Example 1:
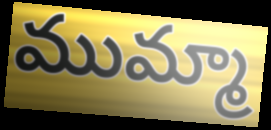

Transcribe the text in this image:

ముమ్మా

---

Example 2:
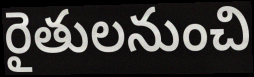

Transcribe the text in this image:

రైతులనుంచి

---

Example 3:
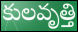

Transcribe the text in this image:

కులవృత్తి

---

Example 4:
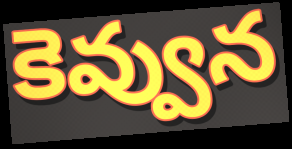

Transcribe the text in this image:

కెవ్వున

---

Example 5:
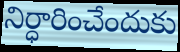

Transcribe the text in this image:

నిర్ధారించేందుకు